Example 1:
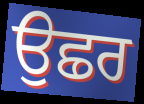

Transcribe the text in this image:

ਉਛਰ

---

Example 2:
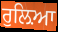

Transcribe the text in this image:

ਰੁਲ਼ਿਆ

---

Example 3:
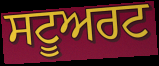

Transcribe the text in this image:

ਸਟੂਅਰਟ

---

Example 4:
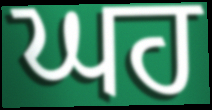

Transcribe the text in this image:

ਘਹ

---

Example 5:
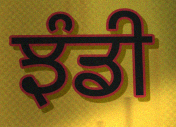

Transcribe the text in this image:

ਝੰਡੀ